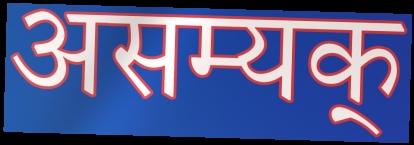
असम्यक्